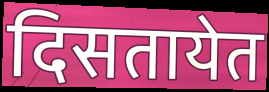
दिसतायेत